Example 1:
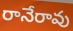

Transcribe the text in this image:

రానేరావు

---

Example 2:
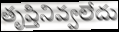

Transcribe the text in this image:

తృప్తినివ్వలేదు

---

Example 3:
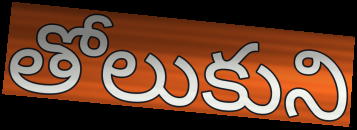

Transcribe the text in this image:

తోలుకుని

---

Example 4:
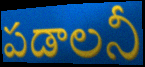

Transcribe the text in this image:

పడాలనీ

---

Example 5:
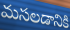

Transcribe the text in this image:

మసలడానికి